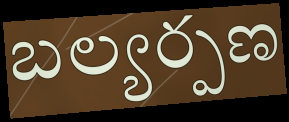
బల్యర్పణ